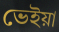
ভেইয়া